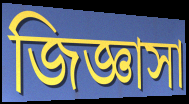
জিজ্ঞাসা